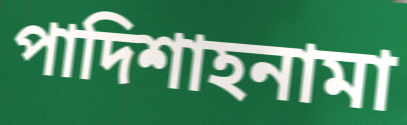
পাদিশাহনামা